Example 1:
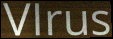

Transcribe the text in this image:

VIrus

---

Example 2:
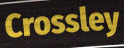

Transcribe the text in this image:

Crossley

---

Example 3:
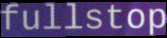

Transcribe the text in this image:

fullstop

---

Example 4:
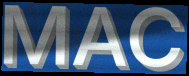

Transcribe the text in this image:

MAC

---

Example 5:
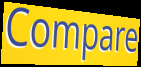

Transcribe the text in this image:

Compare